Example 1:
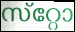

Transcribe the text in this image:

സ്‌റ്റോ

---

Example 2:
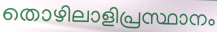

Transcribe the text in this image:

തൊഴിലാളിപ്രസ്ഥാനം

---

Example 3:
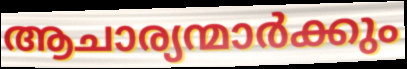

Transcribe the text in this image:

ആചാര്യന്മാർക്കും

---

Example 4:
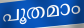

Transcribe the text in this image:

പൂതമാം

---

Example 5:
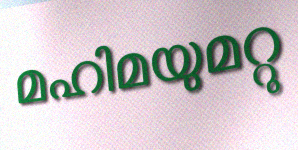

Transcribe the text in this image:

മഹിമയുമറ്റു